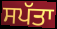
ਸਪੱਤਾ